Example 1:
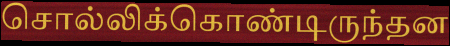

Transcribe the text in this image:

சொல்லிக்கொண்டிருந்தன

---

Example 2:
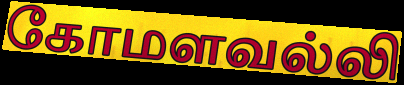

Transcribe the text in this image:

கோமளவல்லி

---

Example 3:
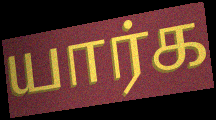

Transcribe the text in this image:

யார்க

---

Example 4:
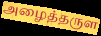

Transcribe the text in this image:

அழைத்தருள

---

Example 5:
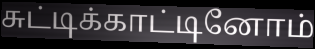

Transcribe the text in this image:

சுட்டிக்காட்டினோம்